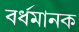
বর্ধমানক